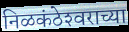
निळकंठेश्वराच्या